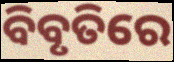
ବିବୃତିରେ